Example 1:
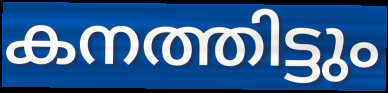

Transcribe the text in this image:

കനത്തിട്ടും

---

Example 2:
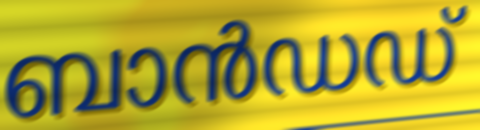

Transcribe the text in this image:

ബാൻഡഡ്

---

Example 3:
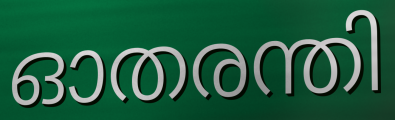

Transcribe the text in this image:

ഓതരന്തി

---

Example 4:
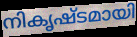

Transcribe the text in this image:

നികൃഷ്ടമായി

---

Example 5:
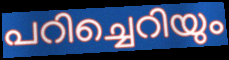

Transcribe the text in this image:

പറിച്ചെറിയും